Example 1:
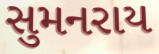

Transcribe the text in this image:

સુમનરાય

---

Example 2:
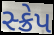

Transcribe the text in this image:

સ્ક્રેપ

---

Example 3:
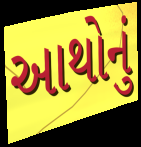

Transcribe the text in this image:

આથોનું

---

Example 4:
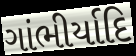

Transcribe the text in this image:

ગાંભીર્યાદિ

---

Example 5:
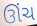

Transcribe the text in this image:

ઊંચ